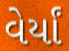
વેર્યાં